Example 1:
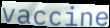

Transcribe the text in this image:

vaccine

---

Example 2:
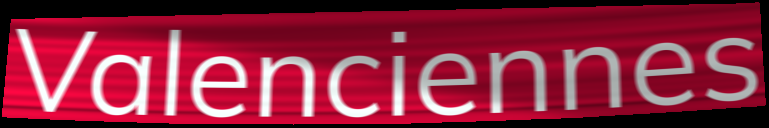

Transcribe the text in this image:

Valenciennes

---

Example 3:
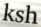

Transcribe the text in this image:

ksh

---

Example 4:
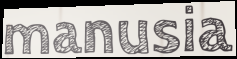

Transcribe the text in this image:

manusia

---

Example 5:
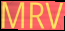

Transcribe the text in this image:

MRV